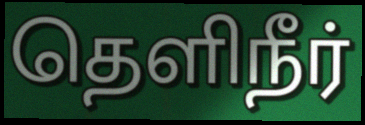
தெளிநீர்